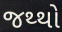
જથ્થો